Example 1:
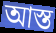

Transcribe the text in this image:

আস্ত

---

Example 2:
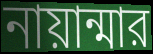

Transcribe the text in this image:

নায়ান্মার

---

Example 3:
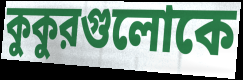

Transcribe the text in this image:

কুকুরগুলোকে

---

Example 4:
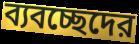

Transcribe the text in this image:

ব্যবচ্ছেদের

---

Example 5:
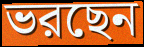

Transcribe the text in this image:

ভরছেন